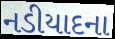
નડીયાદના